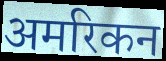
अमरिकन